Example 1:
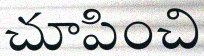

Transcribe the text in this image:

చూపించి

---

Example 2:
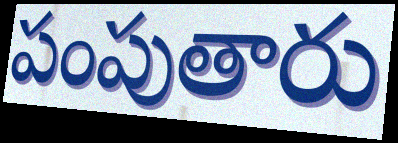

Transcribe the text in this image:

పంపుతారు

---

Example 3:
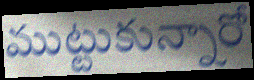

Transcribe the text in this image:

ముట్టుకున్నారో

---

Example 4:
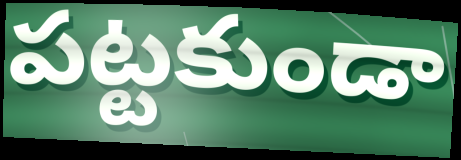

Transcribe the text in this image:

పట్టకుండా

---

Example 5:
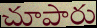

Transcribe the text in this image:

చూపారు